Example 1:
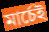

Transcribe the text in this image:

মার্চেই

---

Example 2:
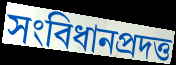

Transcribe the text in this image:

সংবিধানপ্রদত্ত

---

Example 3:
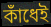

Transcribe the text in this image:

কাঁধেই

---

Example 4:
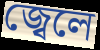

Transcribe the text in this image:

জ্বেলে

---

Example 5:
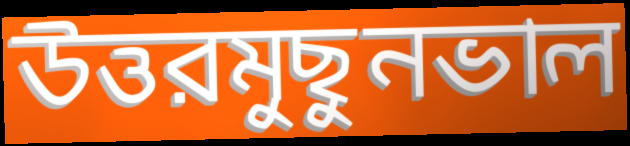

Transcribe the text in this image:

উত্তরমুছুনভাল